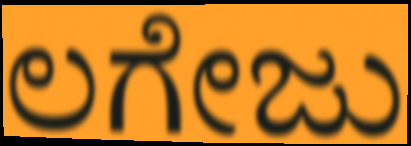
ಲಗೇಜು